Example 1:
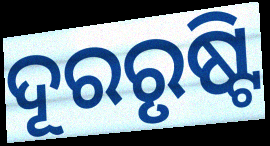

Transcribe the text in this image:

ଦୂରରୃଷ୍ଟି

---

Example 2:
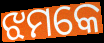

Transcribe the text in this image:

ଝମକେ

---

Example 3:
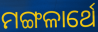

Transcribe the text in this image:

ମଙ୍ଗଳାର୍ଥେ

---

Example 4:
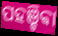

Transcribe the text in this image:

ପହଞ୍ଚିଵା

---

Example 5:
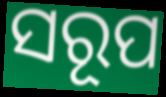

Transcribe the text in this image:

ସରୂପ